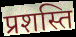
प्रशस्ति